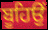
ਬੂਹਿਉਂ